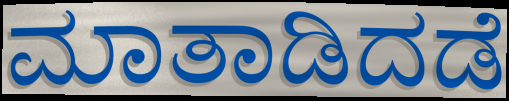
ಮಾತಾಡಿದಡೆ